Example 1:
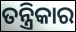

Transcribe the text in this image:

ତନ୍ତ୍ରିକାର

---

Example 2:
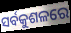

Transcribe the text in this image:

ସର୍ବକୁଶଳରେ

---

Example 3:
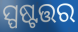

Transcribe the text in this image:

ସ୍ପଷ୍ଟତ୍ତର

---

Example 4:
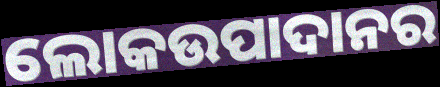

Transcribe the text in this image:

ଲୋକଉପାଦାନର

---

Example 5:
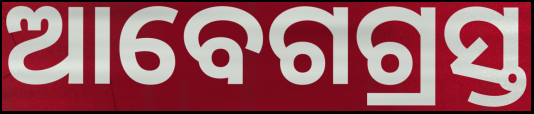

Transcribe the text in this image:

ଆବେଗଗ୍ରସ୍ତ